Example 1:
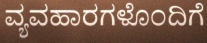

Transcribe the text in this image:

ವ್ಯವಹಾರಗಳೊಂದಿಗೆ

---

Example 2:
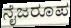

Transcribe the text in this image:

ನೈಜರೂಪ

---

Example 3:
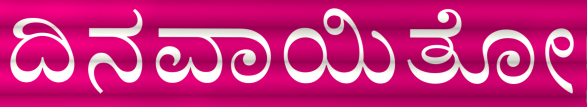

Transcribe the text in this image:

ದಿನವಾಯಿತೋ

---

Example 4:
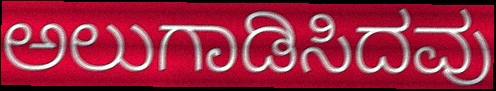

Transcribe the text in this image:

ಅಲುಗಾಡಿಸಿದವು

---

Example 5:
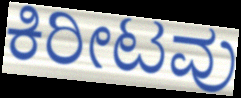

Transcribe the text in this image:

ಕಿರೀಟವು